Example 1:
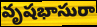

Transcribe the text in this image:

వృషభాసురా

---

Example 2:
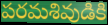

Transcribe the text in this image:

పరమశివుడికి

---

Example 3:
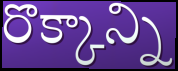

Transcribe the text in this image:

రొక్కాన్ని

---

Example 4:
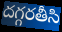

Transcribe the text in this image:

దగ్గరతీసి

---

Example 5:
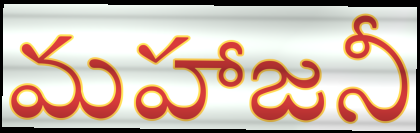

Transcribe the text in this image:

మహాజనీ